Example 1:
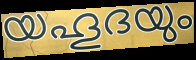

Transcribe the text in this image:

യഹൂദയും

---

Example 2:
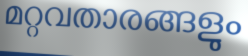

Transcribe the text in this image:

മറ്റവതാരങ്ങളും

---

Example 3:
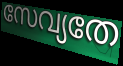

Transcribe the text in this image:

സേവ്യതേ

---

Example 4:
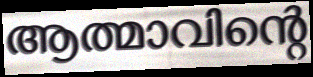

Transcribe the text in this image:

ആത്മാവിന്റെ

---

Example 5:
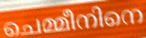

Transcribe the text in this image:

ചെമ്മീനിനെ